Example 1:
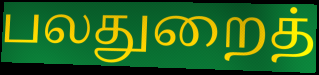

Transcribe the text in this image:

பலதுறைத்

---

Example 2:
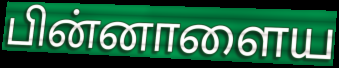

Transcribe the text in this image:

பின்னாளைய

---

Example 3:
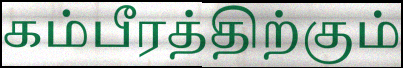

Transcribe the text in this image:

கம்பீரத்திற்கும்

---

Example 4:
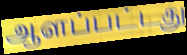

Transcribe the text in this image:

ஆளப்பட்டது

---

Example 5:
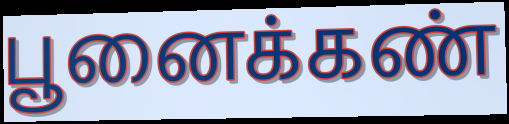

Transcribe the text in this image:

பூனைக்கண்